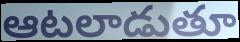
ఆటలాడుతూ